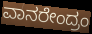
ವಾನರೇಂದ್ರಂ